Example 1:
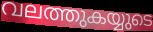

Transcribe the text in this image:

വലത്തുകയ്യുടെ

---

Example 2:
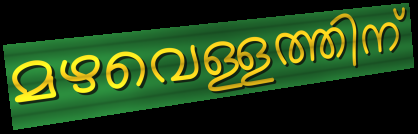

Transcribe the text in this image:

മഴവെള്ളത്തിന്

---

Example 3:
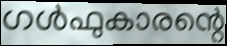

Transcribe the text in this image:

ഗൾഫുകാരന്റെ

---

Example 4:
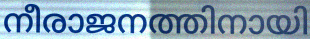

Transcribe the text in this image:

നീരാജനത്തിനായി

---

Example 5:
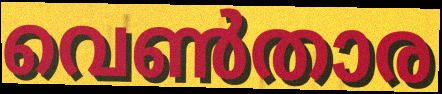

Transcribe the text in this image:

വെൺതാര